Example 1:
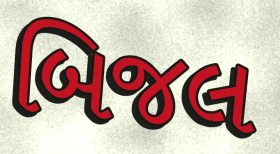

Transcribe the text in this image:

બિજલ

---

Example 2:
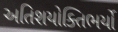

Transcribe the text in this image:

અતિશયોક્તિભર્યો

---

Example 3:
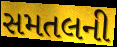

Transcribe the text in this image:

સમતલની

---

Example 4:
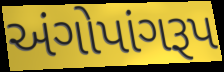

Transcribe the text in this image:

અંગોપાંગરૂપ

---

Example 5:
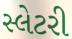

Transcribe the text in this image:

સ્લેટરી